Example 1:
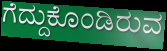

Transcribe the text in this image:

ಗೆದ್ದುಕೊಂಡಿರುವ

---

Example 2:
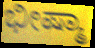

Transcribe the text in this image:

ಭೀಷ್ಮಾ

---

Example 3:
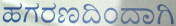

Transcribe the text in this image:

ಹಗರಣದಿಂದಾಗಿ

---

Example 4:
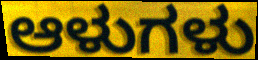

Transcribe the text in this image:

ಆಳುಗಳು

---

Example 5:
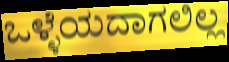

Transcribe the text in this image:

ಒಳ್ಳೆಯದಾಗಲಿಲ್ಲ